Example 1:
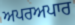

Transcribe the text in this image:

ਅਪਰਅਪਾਰ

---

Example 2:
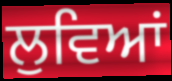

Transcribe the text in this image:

ਲੁਵਿਆਂ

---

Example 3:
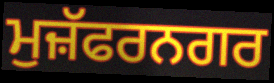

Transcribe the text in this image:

ਮੁਜ਼ੱਫਰਨਗਰ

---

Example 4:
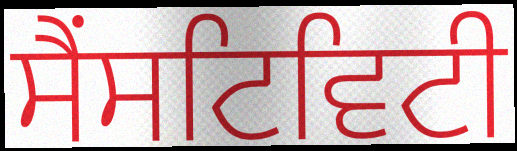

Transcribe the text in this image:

ਸੈਂਸਟਿਵਿਟੀ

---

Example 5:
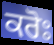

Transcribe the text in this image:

ਕਰੋਃ